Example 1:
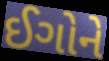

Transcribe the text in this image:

ઈગોને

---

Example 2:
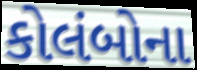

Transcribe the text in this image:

કોલંબોના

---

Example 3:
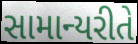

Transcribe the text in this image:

સામાન્યરીતે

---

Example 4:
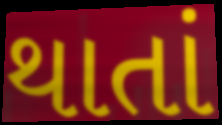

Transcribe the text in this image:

થાતાં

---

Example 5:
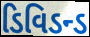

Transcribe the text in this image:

ડિવિડન્ડ